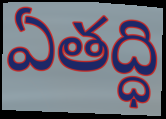
ఏతద్ధి